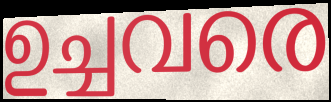
ഉച്ചവരെ